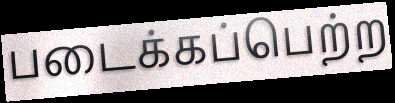
படைக்கப்பெற்ற